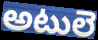
అటులె